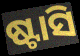
ଷ୍ଟାସି